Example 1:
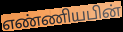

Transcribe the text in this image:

எண்ணியபின்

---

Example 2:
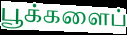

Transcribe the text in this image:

பூக்களைப்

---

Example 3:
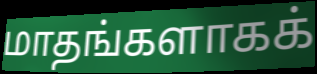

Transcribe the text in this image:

மாதங்களாகக்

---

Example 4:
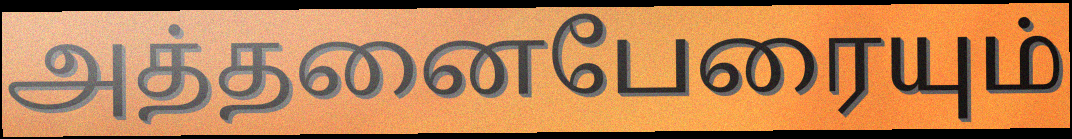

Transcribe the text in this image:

அத்தனைபேரையும்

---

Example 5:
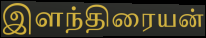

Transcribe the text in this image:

இளந்திரையன்